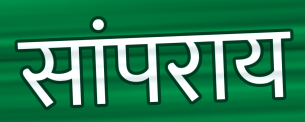
सांपराय